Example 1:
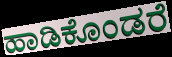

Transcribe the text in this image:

ಹಾಡಿಕೊಂಡರೆ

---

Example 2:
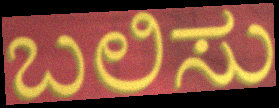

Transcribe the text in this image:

ಬಲಿಸು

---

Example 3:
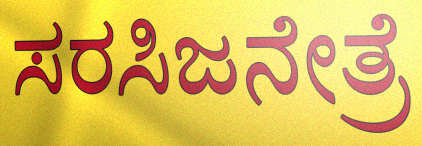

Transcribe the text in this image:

ಸರಸಿಜನೇತ್ರೆ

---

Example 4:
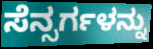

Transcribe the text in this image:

ಸೆನ್ಸರ್ಗಳನ್ನು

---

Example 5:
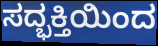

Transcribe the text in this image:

ಸದ್ಭಕ್ತಿಯಿಂದ